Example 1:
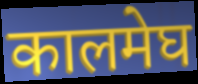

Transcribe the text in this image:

कालमेघ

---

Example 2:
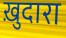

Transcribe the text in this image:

ख़ुदारा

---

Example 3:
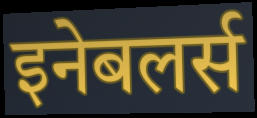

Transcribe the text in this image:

इनेबलर्स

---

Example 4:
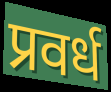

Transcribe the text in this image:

प्रवर्ध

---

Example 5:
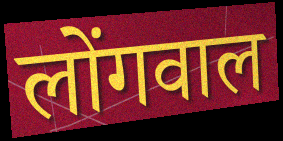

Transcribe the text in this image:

लोंगवाल